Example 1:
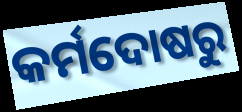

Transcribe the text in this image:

କର୍ମଦୋଷରୁ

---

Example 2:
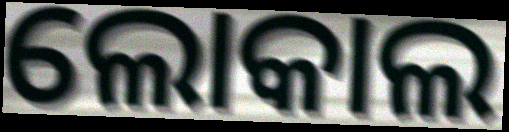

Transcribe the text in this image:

ଲୋକାଲ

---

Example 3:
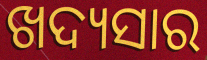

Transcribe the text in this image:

ଖଦ୍ୟସାର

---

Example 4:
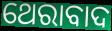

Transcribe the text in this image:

ଥେରାବାଦ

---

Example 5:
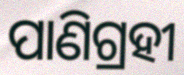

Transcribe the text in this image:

ପାଣିଗ୍ରହୀ